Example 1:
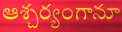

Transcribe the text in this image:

ఆశ్చర్యంగానూ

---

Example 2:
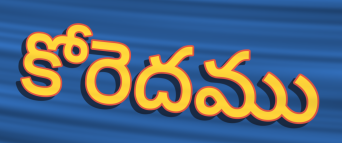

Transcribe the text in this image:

కోరెదము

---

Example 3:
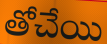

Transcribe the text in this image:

తోచేయి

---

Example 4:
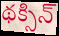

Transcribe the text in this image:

థక్సిన్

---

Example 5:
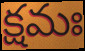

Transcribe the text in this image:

క్షమః